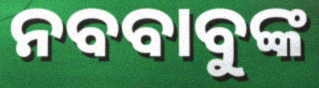
ନବବାବୁଙ୍କ